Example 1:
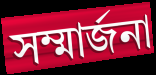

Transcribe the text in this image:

সম্মার্জনা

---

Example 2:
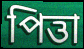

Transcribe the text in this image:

পিত্তা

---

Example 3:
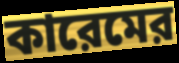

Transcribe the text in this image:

কারেমের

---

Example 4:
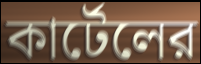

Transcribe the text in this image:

কার্টেলের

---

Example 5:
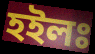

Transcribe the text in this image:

হইলঃ